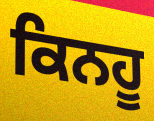
ਕਿਨਹੂ